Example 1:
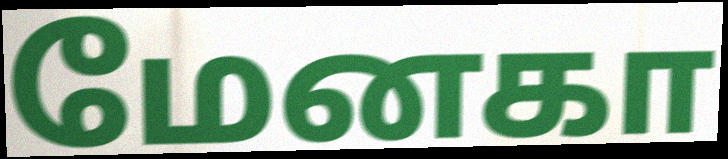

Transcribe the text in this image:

மேனகா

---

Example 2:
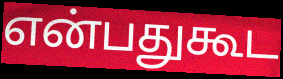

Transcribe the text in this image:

என்பதுகூட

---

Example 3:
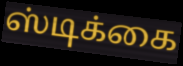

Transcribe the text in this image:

ஸ்டிக்கை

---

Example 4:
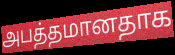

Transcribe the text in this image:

அபத்தமானதாக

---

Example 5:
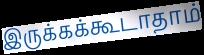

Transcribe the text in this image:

இருக்கக்கூடாதாம்